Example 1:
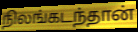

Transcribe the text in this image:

நிலங்கடந்தான்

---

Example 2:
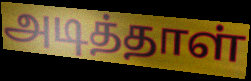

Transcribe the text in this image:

அடித்தாள்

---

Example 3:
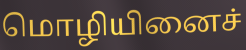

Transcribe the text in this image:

மொழியினைச்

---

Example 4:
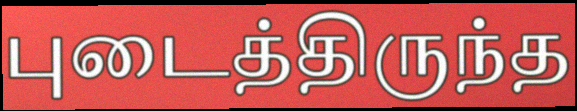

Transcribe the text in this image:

புடைத்திருந்த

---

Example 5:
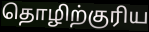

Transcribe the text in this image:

தொழிற்குரிய